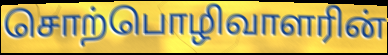
சொற்பொழிவாளரின்